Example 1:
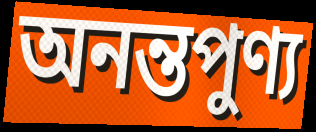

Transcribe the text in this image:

অনন্তপুণ্য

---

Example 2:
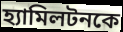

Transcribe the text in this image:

হ্যামিলটনকে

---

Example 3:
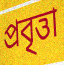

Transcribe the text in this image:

প্রবৃত্তা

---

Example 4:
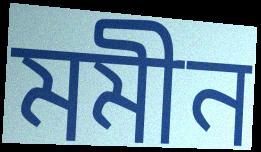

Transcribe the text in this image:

মমীন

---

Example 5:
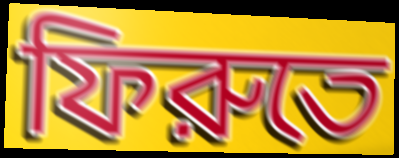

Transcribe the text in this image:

ফিরুতে